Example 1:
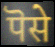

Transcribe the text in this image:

पॆसे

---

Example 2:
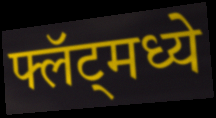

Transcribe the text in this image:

फ्लॅट्मध्ये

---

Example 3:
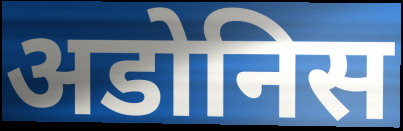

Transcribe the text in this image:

अडोनिस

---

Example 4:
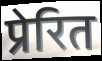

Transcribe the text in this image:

प्रेरित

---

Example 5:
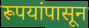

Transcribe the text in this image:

रूपयांपासून